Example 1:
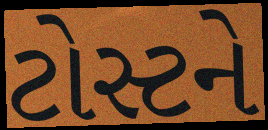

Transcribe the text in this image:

ટોસ્ટને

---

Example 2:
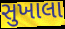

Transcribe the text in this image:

સુખાલા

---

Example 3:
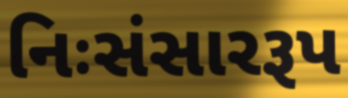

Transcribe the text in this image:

નિઃસંસારરૂપ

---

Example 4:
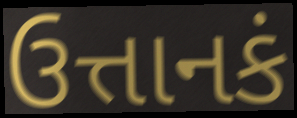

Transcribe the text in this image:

ઉત્તાનકં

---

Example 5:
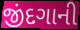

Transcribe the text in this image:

જીંદગાની